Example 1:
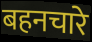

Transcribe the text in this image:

बहनचारे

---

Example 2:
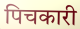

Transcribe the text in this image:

पिचकारी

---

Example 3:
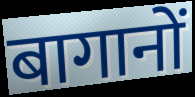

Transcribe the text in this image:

बागानों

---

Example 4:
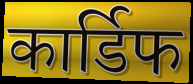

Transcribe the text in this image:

कार्डिफ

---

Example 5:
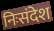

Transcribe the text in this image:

निःसंदेश